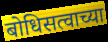
बोधिसत्वाच्या